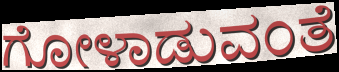
ಗೋಳಾಡುವಂತೆ